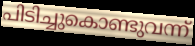
പിടിച്ചുകൊണ്ടുവന്ന്